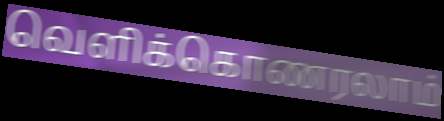
வெளிக்கொணரலாம்